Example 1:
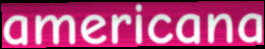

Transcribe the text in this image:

americana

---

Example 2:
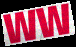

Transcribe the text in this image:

WW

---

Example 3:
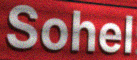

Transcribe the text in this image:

Sohel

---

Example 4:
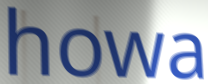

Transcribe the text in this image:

howa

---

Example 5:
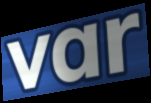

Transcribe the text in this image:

var